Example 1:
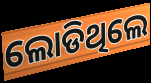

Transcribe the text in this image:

ଲୋଡିଥିଲେ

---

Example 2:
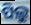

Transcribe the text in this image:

ପିଲୁ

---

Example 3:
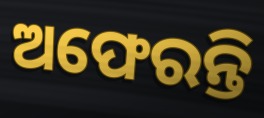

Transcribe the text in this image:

ଅଫେରନ୍ତି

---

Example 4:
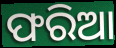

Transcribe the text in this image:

ଫରିଆ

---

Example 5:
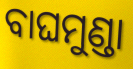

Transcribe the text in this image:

ବାଘମୁଣ୍ଡା